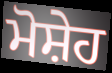
ਮੋਸ਼ੇਹ